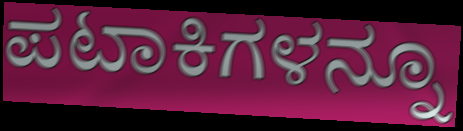
ಪಟಾಕಿಗಳನ್ನೂ